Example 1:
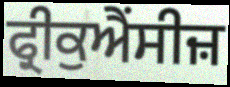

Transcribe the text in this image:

ਫ੍ਰੀਕੁਐਂਸੀਜ਼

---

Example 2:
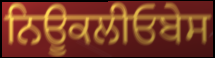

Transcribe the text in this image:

ਨਿਊਕਲੀਓਬੇਸ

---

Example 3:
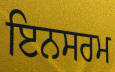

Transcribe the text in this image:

ਇਨਸਰਮ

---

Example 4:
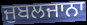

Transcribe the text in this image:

ਜੁਬਲਜਾਨਾ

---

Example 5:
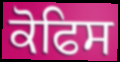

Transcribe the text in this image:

ਕੋਫਿਸ